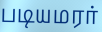
படியமரர்